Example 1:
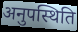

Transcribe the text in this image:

अनुपस्थिति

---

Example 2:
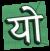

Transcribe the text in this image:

यो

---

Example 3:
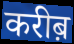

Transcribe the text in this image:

करीब़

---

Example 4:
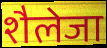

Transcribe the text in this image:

शैलेजा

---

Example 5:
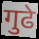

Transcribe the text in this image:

गुढे